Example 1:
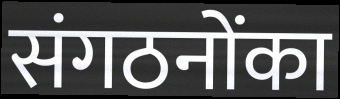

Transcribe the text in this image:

संगठनोंका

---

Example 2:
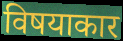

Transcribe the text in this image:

विषयाकार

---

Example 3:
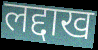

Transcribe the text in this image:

लद्दाख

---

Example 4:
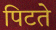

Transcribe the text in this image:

पिटते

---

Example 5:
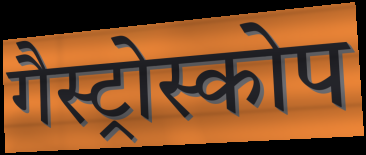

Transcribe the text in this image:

गैस्ट्रोस्कोप